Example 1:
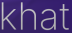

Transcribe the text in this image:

khat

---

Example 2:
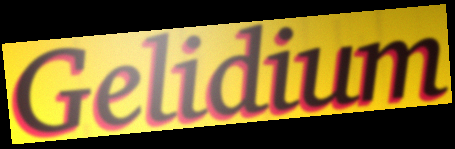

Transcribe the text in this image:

Gelidium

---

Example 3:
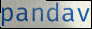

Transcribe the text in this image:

pandav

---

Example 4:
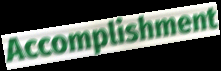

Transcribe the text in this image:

Accomplishment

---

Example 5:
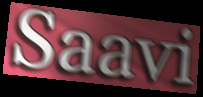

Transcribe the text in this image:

Saavi